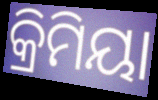
କ୍ରିମିୟା